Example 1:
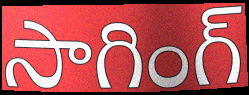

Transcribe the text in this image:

సాగింగ్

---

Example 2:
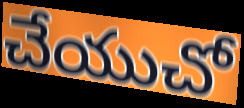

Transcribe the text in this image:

చేయుచో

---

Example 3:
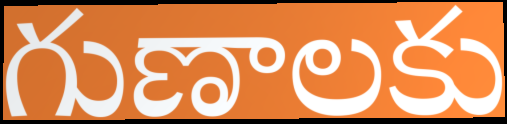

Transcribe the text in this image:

గుణాలకు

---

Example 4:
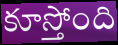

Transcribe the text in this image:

కూస్తోంది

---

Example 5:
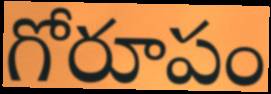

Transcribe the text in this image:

గోరూపం